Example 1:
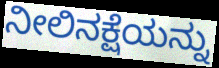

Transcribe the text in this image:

ನೀಲಿನಕ್ಷೆಯನ್ನು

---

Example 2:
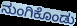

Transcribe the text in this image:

ನುಂಗಿಕೊಂಡು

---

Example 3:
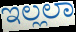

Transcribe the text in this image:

ಇಲ್ಲಲಾ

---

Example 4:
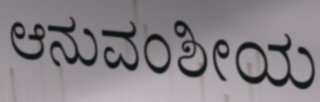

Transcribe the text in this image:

ಆನುವಂಶೀಯ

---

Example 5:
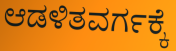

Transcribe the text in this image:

ಆಡಳಿತವರ್ಗಕ್ಕೆ